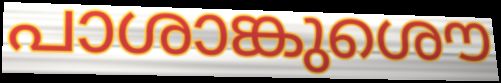
പാശാങ്കുശൌ